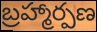
బ్రహ్మార్పణ